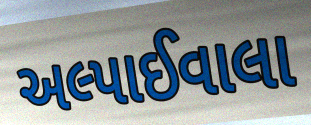
અલ્પાઈવાલા